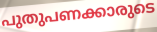
പുതുപണക്കാരുടെ